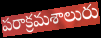
పరాక్రమశాలురు